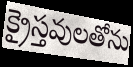
క్రైస్తవులతోను